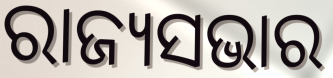
ରାଜ୍ୟସଭାର